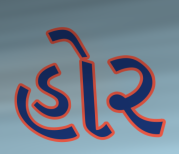
હોર